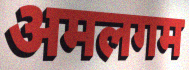
अमलगम